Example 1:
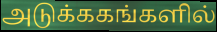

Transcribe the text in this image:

அடுக்ககங்களில்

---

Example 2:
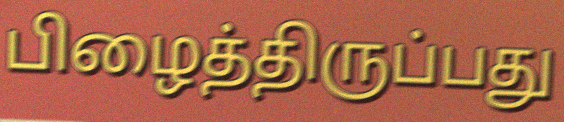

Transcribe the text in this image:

பிழைத்திருப்பது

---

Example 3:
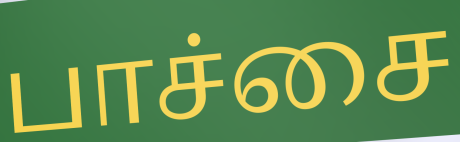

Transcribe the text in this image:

பாச்சை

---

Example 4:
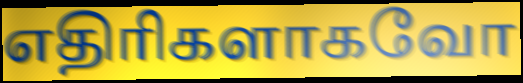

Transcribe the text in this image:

எதிரிகளாகவோ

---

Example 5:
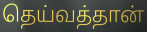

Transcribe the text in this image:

தெய்வத்தான்